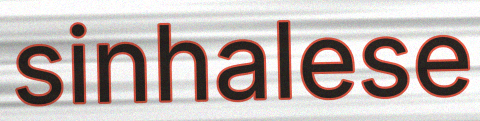
sinhalese